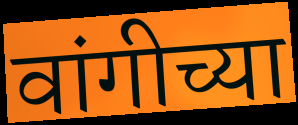
वांगीच्या